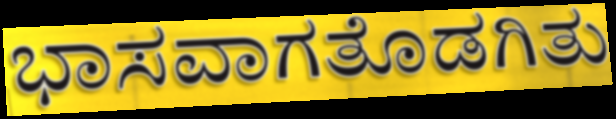
ಭಾಸವಾಗತೊಡಗಿತು